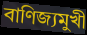
বাণিজ্যমুখী